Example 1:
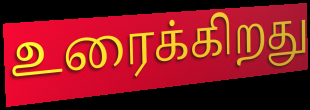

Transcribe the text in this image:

உரைக்கிறது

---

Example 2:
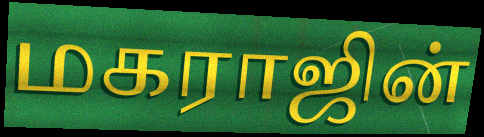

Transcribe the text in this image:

மகராஜின்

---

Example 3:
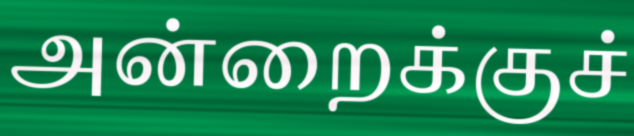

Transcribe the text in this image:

அன்றைக்குச்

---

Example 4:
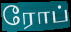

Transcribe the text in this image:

ரோப்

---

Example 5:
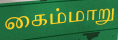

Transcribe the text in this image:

கைம்மாறு